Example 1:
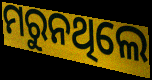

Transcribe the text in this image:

ମରୁନଥିଲେ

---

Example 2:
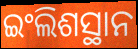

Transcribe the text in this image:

ଇଂଲିଶସ୍ଥାନ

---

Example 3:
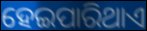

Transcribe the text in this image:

ହେଇପାରିଥାଏ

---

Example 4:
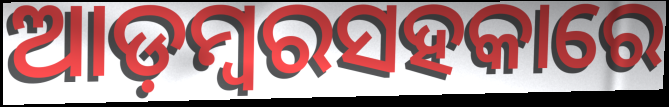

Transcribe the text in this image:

ଆଡ଼ମ୍ବରସହକାରେ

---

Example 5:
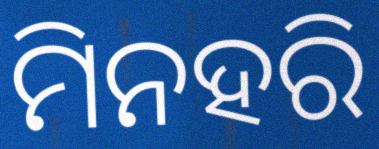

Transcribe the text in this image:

ମିନହରି